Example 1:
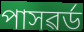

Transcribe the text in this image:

পাসৱৰ্ড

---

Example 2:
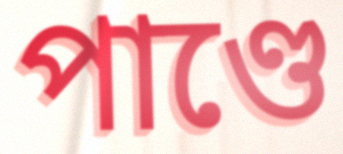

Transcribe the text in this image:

পাণ্ডে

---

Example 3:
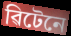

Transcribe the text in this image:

ৱিটেনে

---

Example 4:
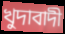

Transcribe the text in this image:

খুদাবাদী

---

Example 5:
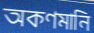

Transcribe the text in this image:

অকণমানি